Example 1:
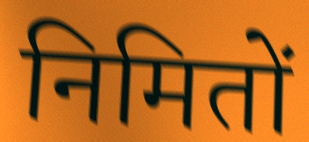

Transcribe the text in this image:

निमितों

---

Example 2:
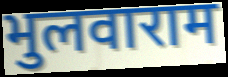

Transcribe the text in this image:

भुलवाराम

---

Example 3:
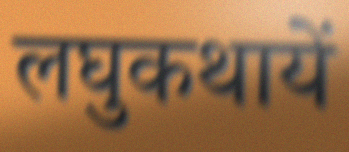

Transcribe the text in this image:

लघुकथायें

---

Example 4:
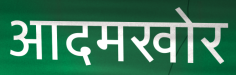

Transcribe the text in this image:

आदमखोर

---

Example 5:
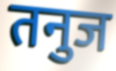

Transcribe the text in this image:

तनुज